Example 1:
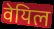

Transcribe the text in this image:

वेयिल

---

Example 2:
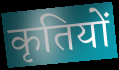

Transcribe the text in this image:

कृतियों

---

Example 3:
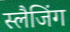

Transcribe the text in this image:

स्लैजिंग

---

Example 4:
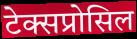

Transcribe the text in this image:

टेक्सप्रोसिल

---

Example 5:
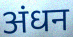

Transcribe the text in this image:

अंधन